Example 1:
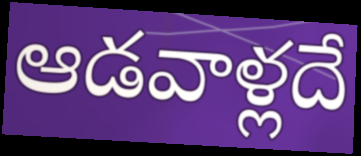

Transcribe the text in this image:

ఆడవాళ్లదే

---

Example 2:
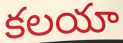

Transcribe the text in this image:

కలయా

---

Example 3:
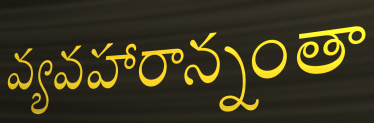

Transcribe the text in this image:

వ్యవహారాన్నంతా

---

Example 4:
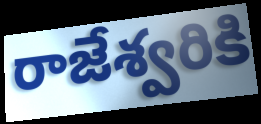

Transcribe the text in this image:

రాజేశ్వరికి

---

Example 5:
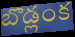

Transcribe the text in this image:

బొడ్లంక